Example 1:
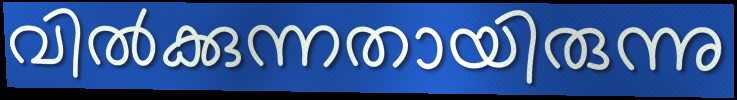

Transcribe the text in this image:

വിൽക്കുന്നതായിരുന്നു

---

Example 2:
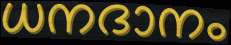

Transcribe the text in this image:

ധനദാനം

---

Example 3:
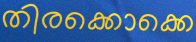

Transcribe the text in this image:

തിരക്കൊക്കെ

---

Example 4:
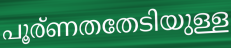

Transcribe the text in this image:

പൂര്ണതതേടിയുള്ള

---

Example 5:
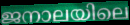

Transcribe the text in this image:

ജനാലയിലെ